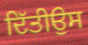
ਦਿੱਤੀਉਸ